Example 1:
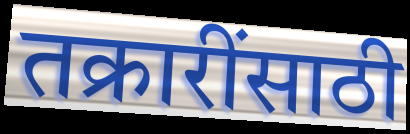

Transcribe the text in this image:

तक्रारींसाठी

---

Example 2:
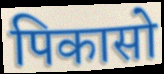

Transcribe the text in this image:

पिकासो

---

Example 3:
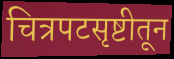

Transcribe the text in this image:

चित्रपटसृष्टीतून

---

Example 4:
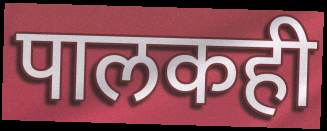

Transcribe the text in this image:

पालकही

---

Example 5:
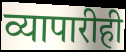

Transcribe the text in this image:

व्यापारीही